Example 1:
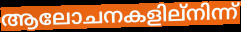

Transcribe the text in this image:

ആലോചനകളില്നിന്ന്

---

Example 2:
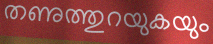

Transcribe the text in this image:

തണുത്തുറയുകയും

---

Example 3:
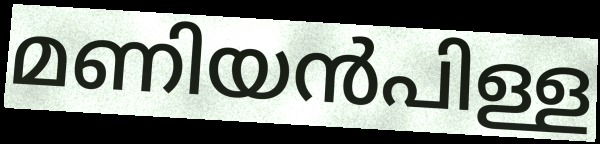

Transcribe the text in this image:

മണിയൻപിള്ള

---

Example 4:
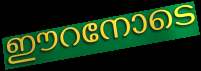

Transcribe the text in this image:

ഈറനോടെ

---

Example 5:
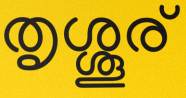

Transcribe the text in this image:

തൃശ്ശൂര്